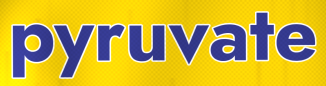
pyruvate